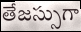
తేజస్సుగా